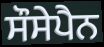
ਸੌਸੇਪੈਨ